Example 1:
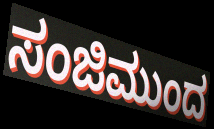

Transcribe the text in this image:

ಸಂಜಿಮುಂದ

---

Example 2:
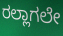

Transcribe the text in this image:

ರಲ್ಲಾಗಲೇ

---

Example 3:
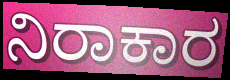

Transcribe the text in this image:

ನಿರಾಕಾರ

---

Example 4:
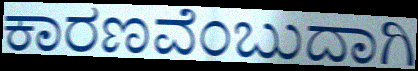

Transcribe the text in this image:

ಕಾರಣವೆಂಬುದಾಗಿ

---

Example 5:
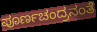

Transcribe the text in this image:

ಪೂರ್ಣಚಂದ್ರನಂತೆ